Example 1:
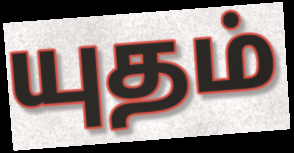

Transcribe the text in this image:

யுதம்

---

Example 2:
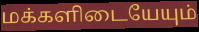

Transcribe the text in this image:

மக்களிடையேயும்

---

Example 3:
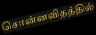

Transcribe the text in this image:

சொன்னவிதத்தில்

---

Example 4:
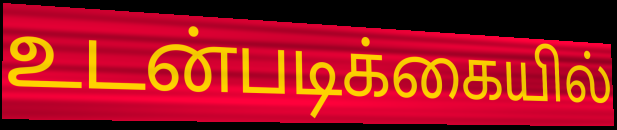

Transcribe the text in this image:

உடன்படிக்கையில்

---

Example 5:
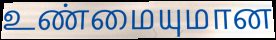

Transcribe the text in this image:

உண்மையுமான